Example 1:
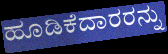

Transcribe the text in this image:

ಹೂಡಿಕೆದಾರರನ್ನು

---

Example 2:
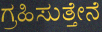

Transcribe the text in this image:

ಗ್ರಹಿಸುತ್ತೇನೆ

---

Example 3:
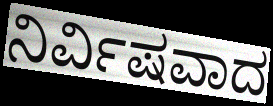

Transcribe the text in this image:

ನಿರ್ವಿಷವಾದ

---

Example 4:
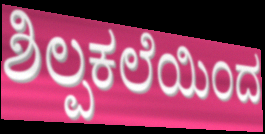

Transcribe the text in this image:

ಶಿಲ್ಪಕಲೆಯಿಂದ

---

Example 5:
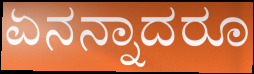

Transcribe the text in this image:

ಏನನ್ನಾದರೂ